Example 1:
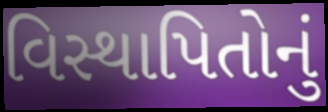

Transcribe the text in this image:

વિસ્થાપિતોનું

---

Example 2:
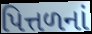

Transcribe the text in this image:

પિત્તળનાં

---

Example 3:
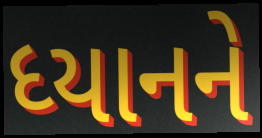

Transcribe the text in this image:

ધ્યાનને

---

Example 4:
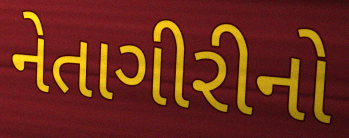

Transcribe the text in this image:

નેતાગીરીનો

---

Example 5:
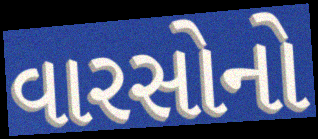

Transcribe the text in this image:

વારસોનો